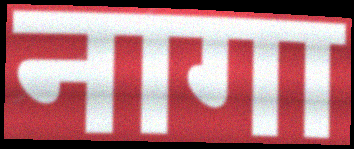
नागा